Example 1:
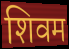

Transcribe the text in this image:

शिवम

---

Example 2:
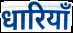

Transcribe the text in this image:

धारियाँ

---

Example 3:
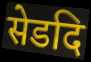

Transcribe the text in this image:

सेडदि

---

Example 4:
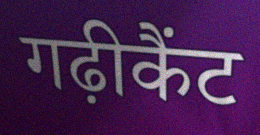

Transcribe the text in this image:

गढ़ीकैंट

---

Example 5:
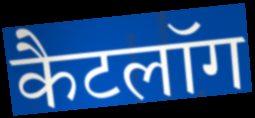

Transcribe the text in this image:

कैटलॉग